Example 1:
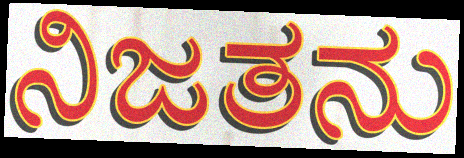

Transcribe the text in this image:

ನಿಜತನು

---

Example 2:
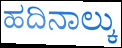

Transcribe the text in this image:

ಹದಿನಾಲ್ಕು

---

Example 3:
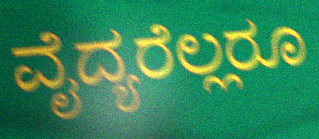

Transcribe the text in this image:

ವೈದ್ಯರೆಲ್ಲರೂ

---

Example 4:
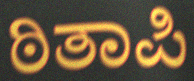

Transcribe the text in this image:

ಠಿತಾಪಿ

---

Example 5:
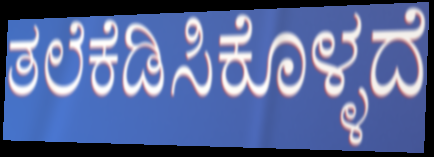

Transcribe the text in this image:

ತಲೆಕೆಡಿಸಿಕೊಳ್ಳದೆ